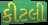
કીટલી